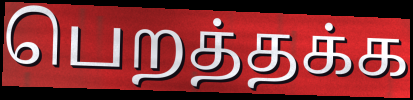
பெறத்தக்க